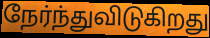
நேர்ந்துவிடுகிறது